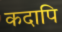
कदापि